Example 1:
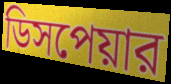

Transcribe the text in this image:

ডিসপেয়ার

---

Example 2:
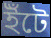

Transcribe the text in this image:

ইঁটে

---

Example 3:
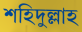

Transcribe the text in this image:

শহিদুল্লাহ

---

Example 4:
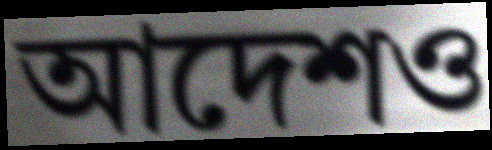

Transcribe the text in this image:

আদেশও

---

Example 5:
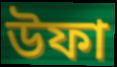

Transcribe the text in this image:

উফা